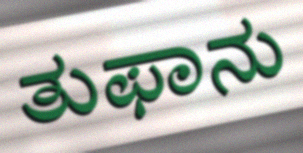
ತುಫಾನು